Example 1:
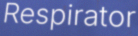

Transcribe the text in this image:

Respirator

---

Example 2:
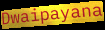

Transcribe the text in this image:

Dwaipayana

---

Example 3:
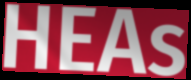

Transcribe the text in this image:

HEAs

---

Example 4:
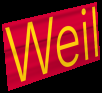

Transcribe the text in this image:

Weil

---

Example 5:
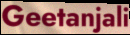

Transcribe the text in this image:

Geetanjali